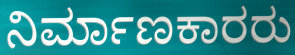
ನಿರ್ಮಾಣಕಾರರು